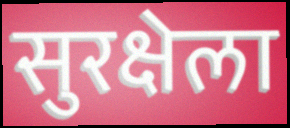
सुरक्षेला